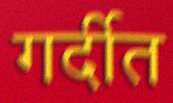
गर्दीत